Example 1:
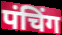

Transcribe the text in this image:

पंचिंग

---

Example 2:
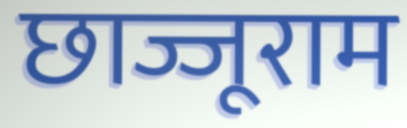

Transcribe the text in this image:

छाज्जूराम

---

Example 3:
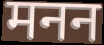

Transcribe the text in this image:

मनन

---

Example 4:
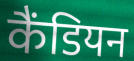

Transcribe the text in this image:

कैंडियन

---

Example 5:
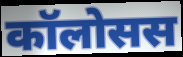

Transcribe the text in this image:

कॉलोसस